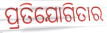
ପ୍ରତିଯୋଗିତାର